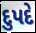
દુપદે